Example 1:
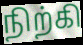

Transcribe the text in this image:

நிற்கி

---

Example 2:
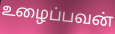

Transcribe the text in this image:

உழைப்பவன்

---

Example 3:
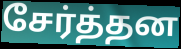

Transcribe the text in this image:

சேர்த்தன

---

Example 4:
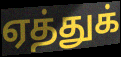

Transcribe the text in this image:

ஏத்துக்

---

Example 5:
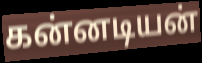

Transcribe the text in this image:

கன்னடியன்